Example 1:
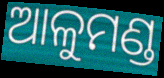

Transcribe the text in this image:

ଆଳୁମଣ୍ଡ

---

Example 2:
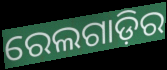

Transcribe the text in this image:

ରେଲଗାଡ଼ିର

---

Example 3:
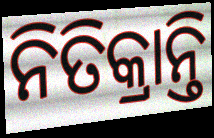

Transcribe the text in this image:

ନିତିକ୍ରାନ୍ତି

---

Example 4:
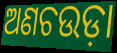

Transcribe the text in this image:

ଅଣଚଉଡ଼ା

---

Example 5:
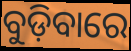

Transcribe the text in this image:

ବୁଡ଼ିବାରେ